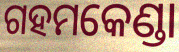
ଗହମକେଣ୍ଡା